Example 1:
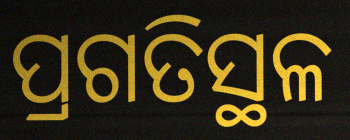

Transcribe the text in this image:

ପ୍ରଗତିସ୍ଥଳ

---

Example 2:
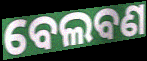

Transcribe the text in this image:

ବେଲବଣ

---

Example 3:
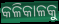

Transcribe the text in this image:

କଳିକାଳକୁ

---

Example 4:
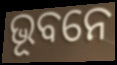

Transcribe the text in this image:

ଭୂବନେ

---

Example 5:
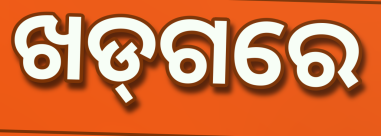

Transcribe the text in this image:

ଖଡ୍‌ଗରେ